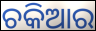
ଚକିଆର